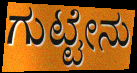
ಗುಟ್ಟೇನು